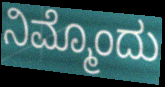
ನಿಮ್ಮೊಂದು